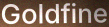
Goldfine